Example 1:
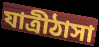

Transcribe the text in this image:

যাত্রীঠাসা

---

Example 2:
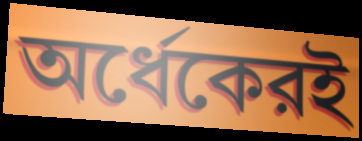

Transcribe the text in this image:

অর্ধেকেরই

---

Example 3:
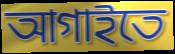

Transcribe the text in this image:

আগাইতে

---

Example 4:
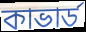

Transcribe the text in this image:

কাভার্ড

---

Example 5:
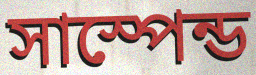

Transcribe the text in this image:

সাস্পেন্ড